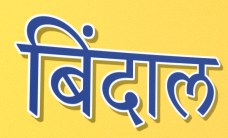
बिंदाल